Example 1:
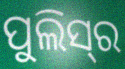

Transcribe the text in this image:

ପୁଲିସ୍‍ର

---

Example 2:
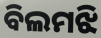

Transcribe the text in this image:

ବିଲମଝି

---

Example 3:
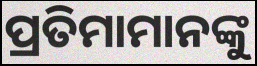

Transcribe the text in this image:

ପ୍ରତିମାମାନଙ୍କୁ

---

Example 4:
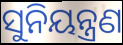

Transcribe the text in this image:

ସୁନିୟନ୍ତ୍ରଣ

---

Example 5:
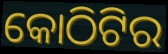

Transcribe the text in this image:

କୋଠିଟିର